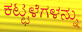
ಕಟ್ಟಳೆಗಳನ್ನು